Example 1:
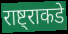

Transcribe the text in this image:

राष्ट्राकडे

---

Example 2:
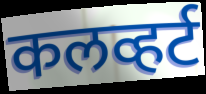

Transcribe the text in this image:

कलव्हर्ट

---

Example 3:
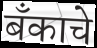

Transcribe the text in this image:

बँकाचे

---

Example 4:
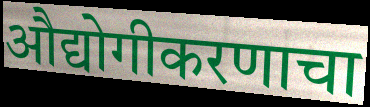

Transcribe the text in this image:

औद्योगीकरणाचा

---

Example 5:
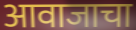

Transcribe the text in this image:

आवाजाचा